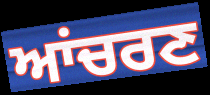
ਆਂਚਰਣ